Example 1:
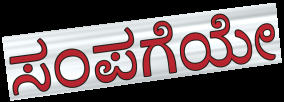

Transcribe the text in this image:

ಸಂಪಗೆಯೇ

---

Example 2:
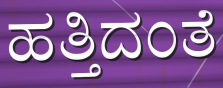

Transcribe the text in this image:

ಹತ್ತಿದಂತೆ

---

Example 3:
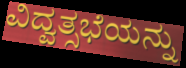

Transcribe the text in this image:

ವಿದ್ವತ್ಸಭೆಯನ್ನು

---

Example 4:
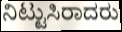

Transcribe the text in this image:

ನಿಟ್ಟುಸಿರಾದರು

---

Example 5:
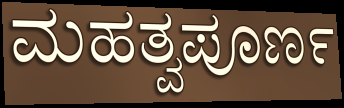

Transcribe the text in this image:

ಮಹತ್ವಪೂರ್ಣ